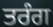
ਤਰੰਗ